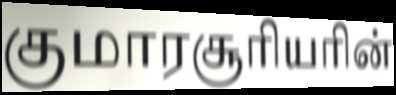
குமாரசூரியரின்